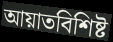
আয়াতবিশিষ্ট